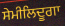
ਸੇਮੀਲਿਦੂਗਾ